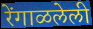
रेंगाळलेली